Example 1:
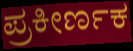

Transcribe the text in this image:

ಪ್ರಕೀರ್ಣಕ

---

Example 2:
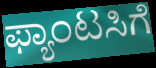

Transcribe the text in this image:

ಫ್ಯಾಂಟಸಿಗೆ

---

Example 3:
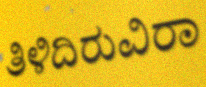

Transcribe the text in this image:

ತಿಳಿದಿರುವಿರಾ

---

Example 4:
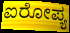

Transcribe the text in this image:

ಐರೋಪ್ಯ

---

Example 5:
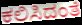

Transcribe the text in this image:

ಕಲಿಸಿದಂತೆ